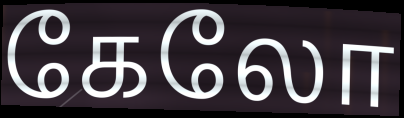
கேலோ